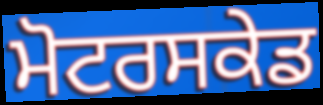
ਮੋਟਰਸਕੇਡ